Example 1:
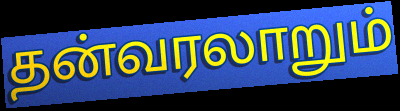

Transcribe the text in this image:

தன்வரலாறும்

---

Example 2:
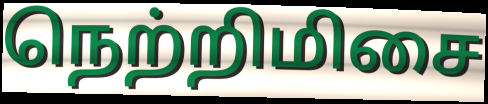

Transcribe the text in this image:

நெற்றிமிசை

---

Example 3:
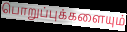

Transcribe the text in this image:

பொறுப்புக்களையும்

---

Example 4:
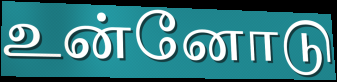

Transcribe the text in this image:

உன்னோடு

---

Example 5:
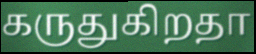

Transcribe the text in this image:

கருதுகிறதா